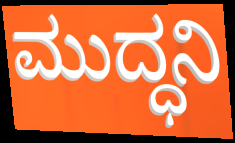
ಮುದ್ಧನಿ